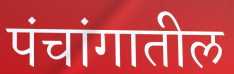
पंचांगातील